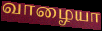
வாழையா